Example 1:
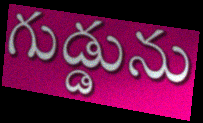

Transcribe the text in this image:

గుడ్డును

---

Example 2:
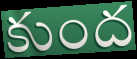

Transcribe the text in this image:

కుంద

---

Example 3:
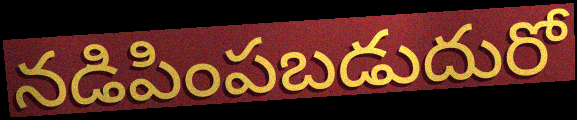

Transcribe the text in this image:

నడిపింపబడుదురో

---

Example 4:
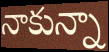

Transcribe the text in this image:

నాకున్నా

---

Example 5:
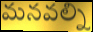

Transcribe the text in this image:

మనవల్ని